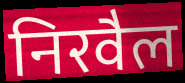
निरवैल